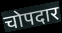
चोपदार